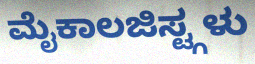
ಮೈಕಾಲಜಿಸ್ಟ್ಗಳು